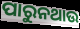
ପାରୁନଥାଉ